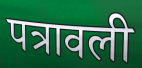
पत्रावली